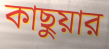
কাছুয়ার